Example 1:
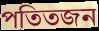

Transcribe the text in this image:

পতিতজন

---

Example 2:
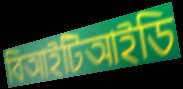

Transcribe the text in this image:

বিআইটিআইডি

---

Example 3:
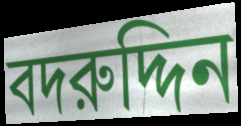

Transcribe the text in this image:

বদরুদ্দিন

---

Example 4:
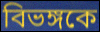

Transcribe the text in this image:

বিভঙ্গকে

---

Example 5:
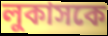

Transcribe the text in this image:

লুকাসকে